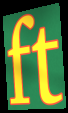
ft